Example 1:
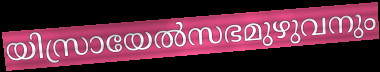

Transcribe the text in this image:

യിസ്രായേൽസഭമുഴുവനും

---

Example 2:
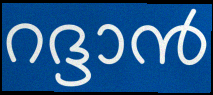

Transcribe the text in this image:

റദ്ദാൻ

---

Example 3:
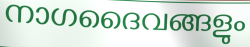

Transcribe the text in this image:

നാഗദൈവങ്ങളും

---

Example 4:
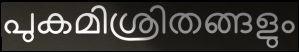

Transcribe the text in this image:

പുകമിശ്രിതങ്ങളും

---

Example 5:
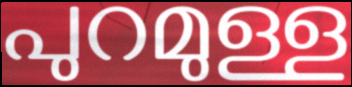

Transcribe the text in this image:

പുറമുള്ള